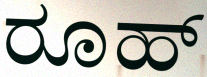
ರೂಹ್